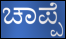
ಚಾಪ್ಪೆ